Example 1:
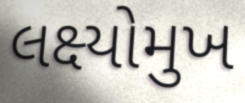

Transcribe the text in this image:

લક્ષ્યોમુખ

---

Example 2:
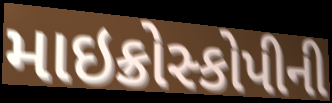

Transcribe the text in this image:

માઇક્રોસ્કોપીની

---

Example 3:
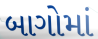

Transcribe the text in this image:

બાગોમાં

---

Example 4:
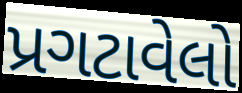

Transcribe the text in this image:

પ્રગટાવેલો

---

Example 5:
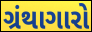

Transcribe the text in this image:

ગ્રંથાગારો